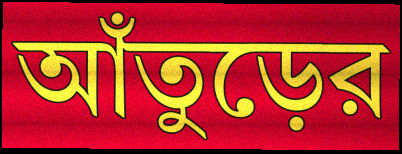
আঁতুড়ের